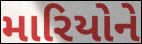
મારિયોને